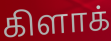
கிளாக்